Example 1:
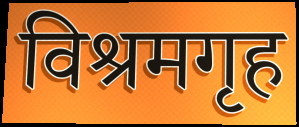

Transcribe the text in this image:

विश्रमगृह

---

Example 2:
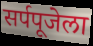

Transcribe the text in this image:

सर्पपूजेला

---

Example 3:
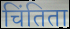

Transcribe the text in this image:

चिंतिता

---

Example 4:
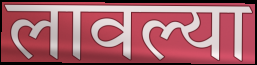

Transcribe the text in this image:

लावल्या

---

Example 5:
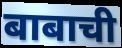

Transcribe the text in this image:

बाबाची